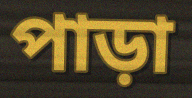
পাড়া